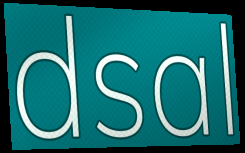
dsal